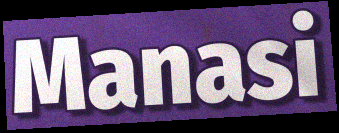
Manasi